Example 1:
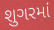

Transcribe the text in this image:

શુગરમાં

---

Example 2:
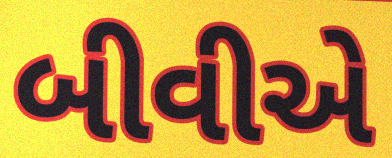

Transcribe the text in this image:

બીવીએ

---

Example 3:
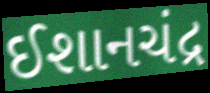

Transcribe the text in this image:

ઈશાનચંદ્ર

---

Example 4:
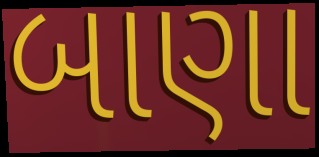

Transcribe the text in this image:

બાણા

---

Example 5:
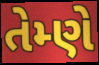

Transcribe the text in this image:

તેમ્ણે